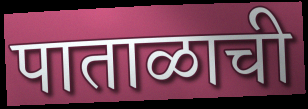
पाताळाची